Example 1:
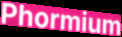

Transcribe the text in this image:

Phormium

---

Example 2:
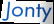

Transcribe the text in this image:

Jonty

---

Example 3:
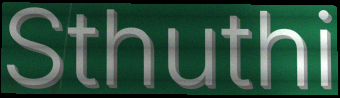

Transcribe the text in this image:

Sthuthi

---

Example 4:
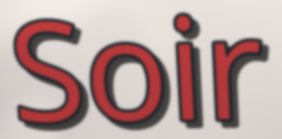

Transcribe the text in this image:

Soir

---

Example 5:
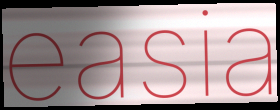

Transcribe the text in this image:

easia